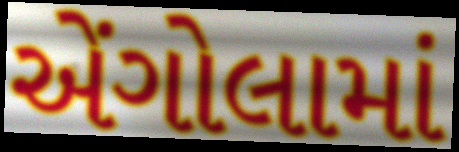
એંગોલામાં